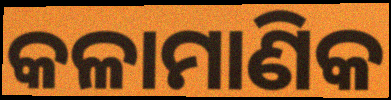
କଳାମାଣିକ